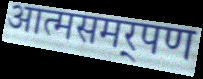
आत्मसमर्पण